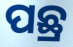
ପଛ୍ର